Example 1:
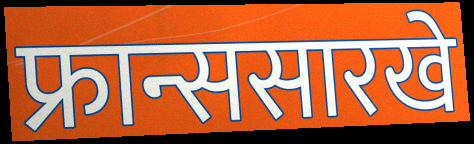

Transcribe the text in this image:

फ्रान्ससारखे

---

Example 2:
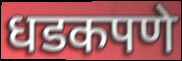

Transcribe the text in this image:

धडकपणे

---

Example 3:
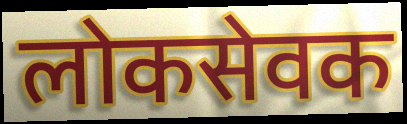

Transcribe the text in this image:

लोकसेवक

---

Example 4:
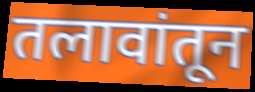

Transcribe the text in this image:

तलावांतून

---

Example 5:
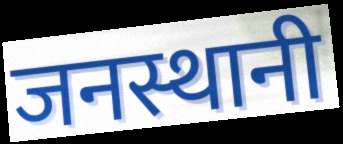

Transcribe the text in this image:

जनस्थानी